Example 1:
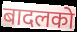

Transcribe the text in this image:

बादलको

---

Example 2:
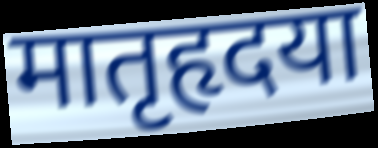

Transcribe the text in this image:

मातृहृदया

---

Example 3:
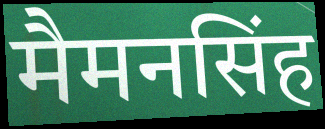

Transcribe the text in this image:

मैमनसिंह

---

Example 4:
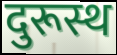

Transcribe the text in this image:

दुरूस्थ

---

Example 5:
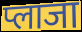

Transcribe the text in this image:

प्‍लाजा